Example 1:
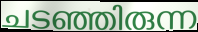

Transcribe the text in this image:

ചടഞ്ഞിരുന്ന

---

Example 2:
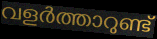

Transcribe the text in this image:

വളർത്താറുണ്ട്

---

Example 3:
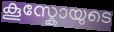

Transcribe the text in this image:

കൂസ്കോയുടെ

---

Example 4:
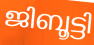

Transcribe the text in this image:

ജിബൂട്ടി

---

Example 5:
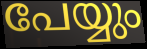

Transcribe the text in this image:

പേയ്യും